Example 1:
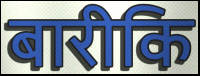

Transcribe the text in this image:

बारीकि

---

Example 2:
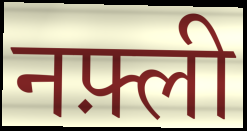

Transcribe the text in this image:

नफ़्ली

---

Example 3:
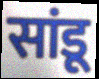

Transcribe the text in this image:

सांडू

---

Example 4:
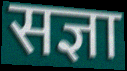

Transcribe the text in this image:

सज्ञा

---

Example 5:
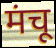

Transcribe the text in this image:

मंचू